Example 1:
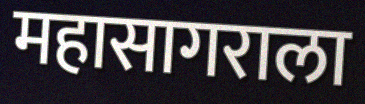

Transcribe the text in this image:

महासागराला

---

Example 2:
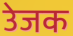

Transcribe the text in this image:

उेजक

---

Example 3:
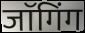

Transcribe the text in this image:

जॉगिंग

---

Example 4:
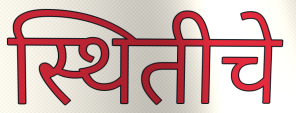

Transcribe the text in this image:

स्थितीचे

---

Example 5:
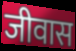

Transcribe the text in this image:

जीवास